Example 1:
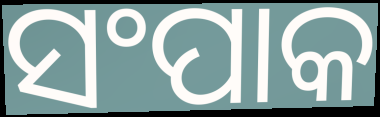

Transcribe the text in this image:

ସଂପାକ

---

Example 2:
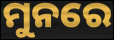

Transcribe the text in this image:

ମୁନରେ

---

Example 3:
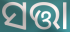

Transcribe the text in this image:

ସତ୍ତା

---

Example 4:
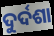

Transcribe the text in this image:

ଦୁର୍ଦଶା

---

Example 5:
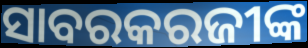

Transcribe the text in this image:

ସାବରକରଜୀଙ୍କ